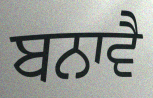
ਬਨਾਵੈ